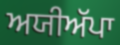
ਅਯੀਅੱਪਾ